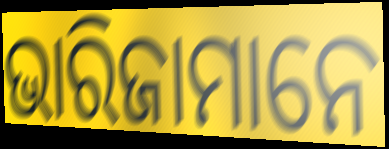
ଭାରିଜାମାନେ